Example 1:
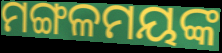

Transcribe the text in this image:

ମଙ୍ଗଳମୟଙ୍କ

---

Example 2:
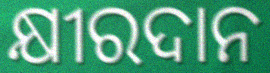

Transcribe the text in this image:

କ୍ଷୀରଦାନ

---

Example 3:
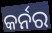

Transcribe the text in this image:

କର୍ନର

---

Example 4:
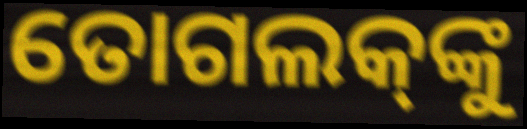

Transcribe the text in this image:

ତୋଗଲକ୍‌ଙ୍କୁ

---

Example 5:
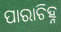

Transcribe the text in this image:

ପାରାଚିହ୍ନ